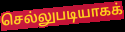
செல்லுபடியாகக்